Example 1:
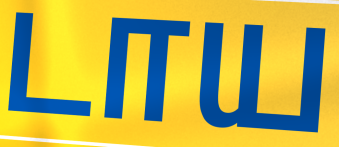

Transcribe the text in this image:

டாய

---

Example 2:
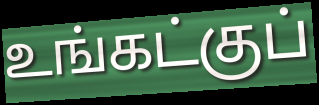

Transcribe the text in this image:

உங்கட்குப்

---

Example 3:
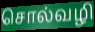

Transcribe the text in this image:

சொல்வழி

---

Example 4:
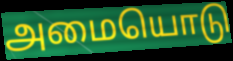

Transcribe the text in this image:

அமையொடு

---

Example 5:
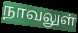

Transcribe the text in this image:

நாவலுள்